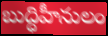
బుద్ధిహీనులం